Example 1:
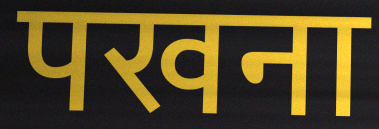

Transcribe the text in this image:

पखना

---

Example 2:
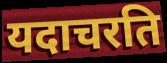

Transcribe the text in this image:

यदाचरति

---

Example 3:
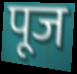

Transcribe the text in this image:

पूज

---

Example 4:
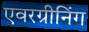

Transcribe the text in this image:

एवरग्रीनिंग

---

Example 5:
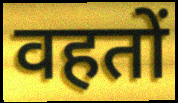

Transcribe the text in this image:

वहतों